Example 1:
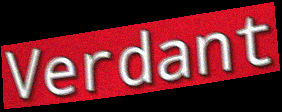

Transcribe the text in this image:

Verdant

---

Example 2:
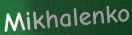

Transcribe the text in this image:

Mikhalenko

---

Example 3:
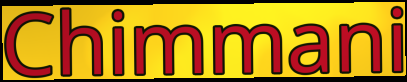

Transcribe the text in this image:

Chimmani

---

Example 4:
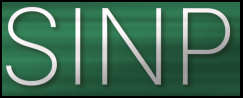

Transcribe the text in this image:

SINP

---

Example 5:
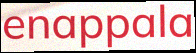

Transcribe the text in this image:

enappala